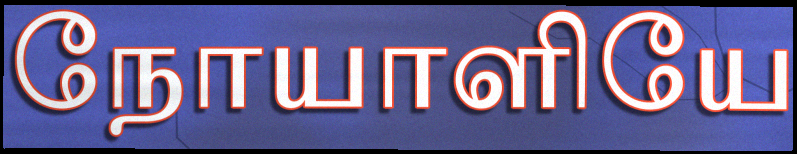
நோயாளியே